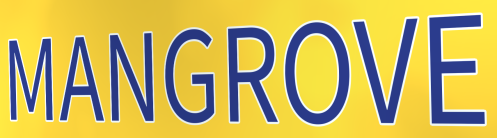
MANGROVE